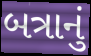
બત્રાનું